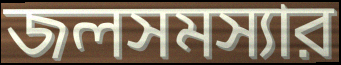
জলসমস্যার